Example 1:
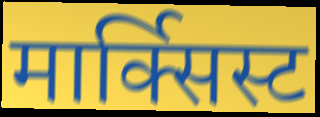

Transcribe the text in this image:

मार्क्सिस्ट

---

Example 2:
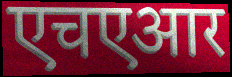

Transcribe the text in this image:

एचएआर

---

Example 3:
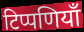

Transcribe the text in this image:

टिप्पणियाँ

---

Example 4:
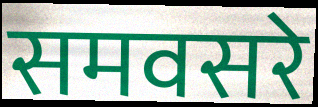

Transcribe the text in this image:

समवसरे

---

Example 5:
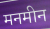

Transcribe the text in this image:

मनमीन